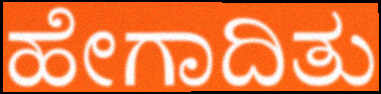
ಹೇಗಾದಿತು